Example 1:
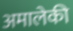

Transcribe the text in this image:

अमालेकी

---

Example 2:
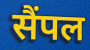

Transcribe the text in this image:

सैंपल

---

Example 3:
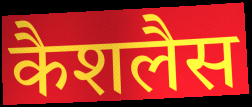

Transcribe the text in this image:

कैशलैस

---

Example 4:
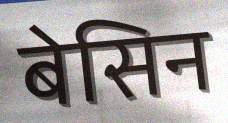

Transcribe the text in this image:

बेसिन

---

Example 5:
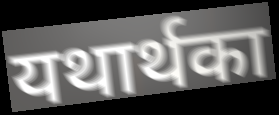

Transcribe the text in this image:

यथार्थका